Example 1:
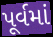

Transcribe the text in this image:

પૂર્વમાં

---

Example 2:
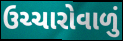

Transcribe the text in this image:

ઉચ્ચારોવાળું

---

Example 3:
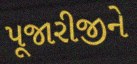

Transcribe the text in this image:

પૂજારીજીને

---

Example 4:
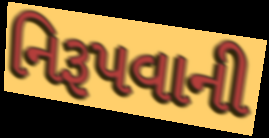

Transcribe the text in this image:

નિરૂપવાની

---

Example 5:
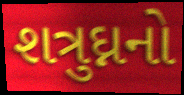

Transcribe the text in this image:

શત્રુઘ્નનો